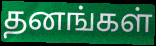
தனங்கள்